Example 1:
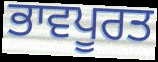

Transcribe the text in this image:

ਭਾਵਪੂਰਤ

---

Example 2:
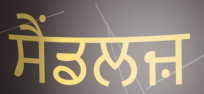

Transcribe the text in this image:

ਸੈਂਡਲਜ਼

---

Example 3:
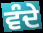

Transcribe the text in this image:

ਵੰਦੇ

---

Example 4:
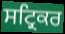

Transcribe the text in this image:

ਸਟ੍ਰਿਕਰ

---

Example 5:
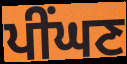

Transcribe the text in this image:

ਪੀਂਘਣ